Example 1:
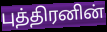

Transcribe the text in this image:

புத்திரனின்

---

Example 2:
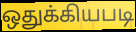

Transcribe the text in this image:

ஒதுக்கியபடி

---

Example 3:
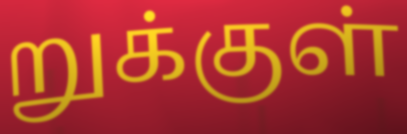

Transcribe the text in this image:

றுக்குள்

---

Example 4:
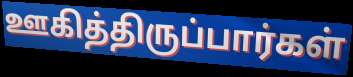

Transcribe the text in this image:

ஊகித்திருப்பார்கள்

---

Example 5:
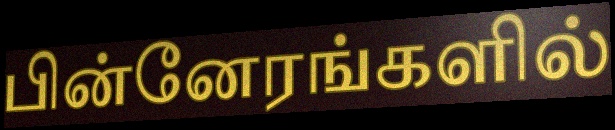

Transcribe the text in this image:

பின்னேரங்களில்